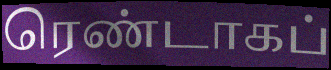
ரெண்டாகப்